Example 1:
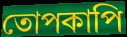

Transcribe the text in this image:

তোপকাপি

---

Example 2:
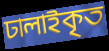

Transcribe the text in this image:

ঢালাইকৃত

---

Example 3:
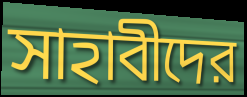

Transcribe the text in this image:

সাহাবীদের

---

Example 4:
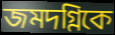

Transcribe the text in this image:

জমদগ্নিকে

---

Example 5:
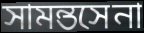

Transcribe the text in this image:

সামন্তসেনা